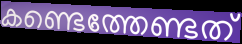
കണ്ടെത്തേണ്ടത്